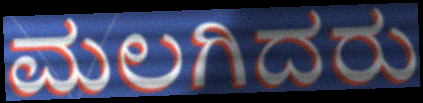
ಮಲಗಿದರು